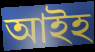
আইহ